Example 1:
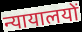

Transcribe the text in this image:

न्यायालयों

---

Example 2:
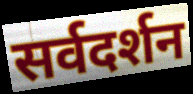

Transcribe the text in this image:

सर्वदर्शन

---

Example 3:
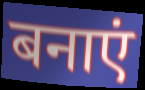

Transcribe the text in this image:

बनाएं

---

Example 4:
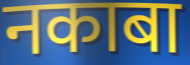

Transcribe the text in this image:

नकाबा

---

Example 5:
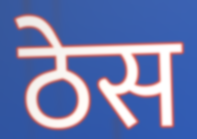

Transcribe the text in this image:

ठेस